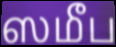
ஸமீப